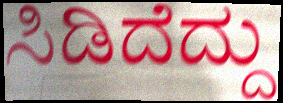
ಸಿಡಿದೆದ್ದು